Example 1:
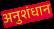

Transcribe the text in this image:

अनुशंधान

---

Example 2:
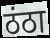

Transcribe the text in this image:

ठंठा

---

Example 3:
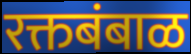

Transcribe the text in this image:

रक्तबंबाळ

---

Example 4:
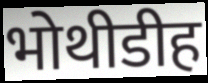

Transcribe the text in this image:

भोथीडीह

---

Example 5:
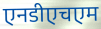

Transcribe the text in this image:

एनडीएचएम